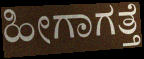
ಹೀಗಾಗತ್ತೆ